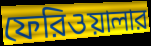
ফেরিওয়ালার